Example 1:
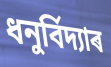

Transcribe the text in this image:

ধনুৰ্বিদ্যাৰ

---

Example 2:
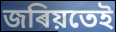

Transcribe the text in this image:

জৰিয়তেই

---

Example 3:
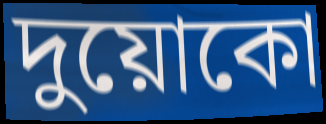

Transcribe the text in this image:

দুয়োকো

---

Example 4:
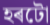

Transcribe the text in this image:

হৰটো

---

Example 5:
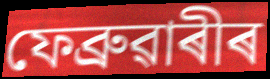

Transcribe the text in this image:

ফেব্ৰুৱাৰীৰ